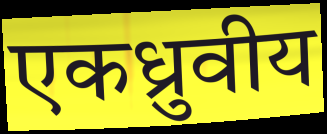
एकध्रुवीय